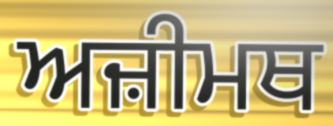
ਅਜ਼ੀਮਥ